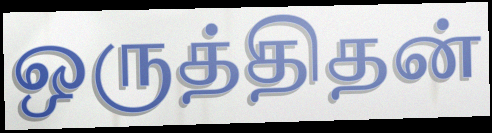
ஒருத்திதன்